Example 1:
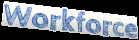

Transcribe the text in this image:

Workforce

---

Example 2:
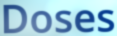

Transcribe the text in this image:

Doses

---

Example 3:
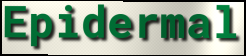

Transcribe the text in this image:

Epidermal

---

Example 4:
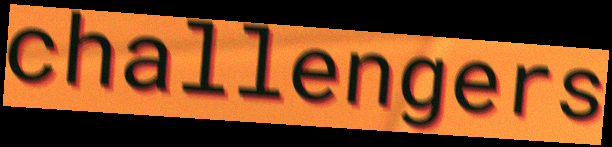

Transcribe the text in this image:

challengers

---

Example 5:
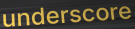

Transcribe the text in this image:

underscore